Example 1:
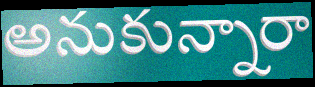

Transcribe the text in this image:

అనుకున్నారా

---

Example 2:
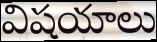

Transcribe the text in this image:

విషయాలు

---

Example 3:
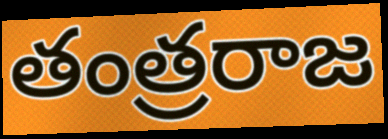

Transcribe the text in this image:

తంత్రరాజ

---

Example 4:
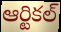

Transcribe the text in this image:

ఆర్టికల్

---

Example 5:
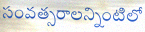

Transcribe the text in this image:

సంవత్సరాలన్నింటిలో